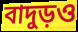
বাদুড়ও